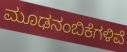
ಮೂಢನಂಬಿಕೆಗಳಿವೆ